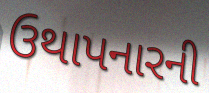
ઉથાપનારની